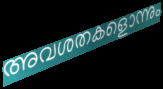
അവശതകളൊന്നും